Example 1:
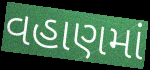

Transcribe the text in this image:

વહાણમાં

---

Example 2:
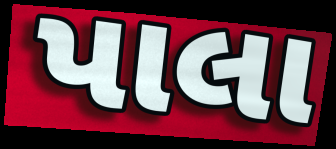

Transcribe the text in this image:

પાલા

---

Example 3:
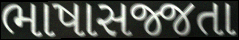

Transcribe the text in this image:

ભાષાસજ્જતા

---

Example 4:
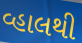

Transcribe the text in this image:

વ્હાલથી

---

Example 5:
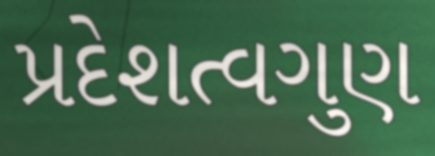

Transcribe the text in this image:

પ્રદેશત્વગુણ